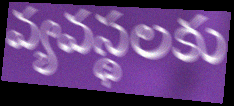
వ్యవస్థలకు